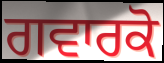
ਗਵਾਰਕੋ